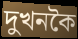
দুখনকৈ